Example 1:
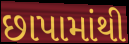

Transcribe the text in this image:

છાપામાંથી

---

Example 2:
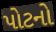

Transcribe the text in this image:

પોટનો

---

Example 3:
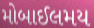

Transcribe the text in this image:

મોબાઈલમય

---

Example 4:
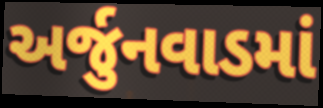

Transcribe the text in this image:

અર્જુનવાડમાં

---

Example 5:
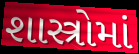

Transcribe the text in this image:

શાસ્ત્રોમાં